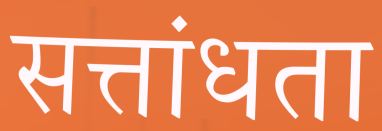
सत्तांधता